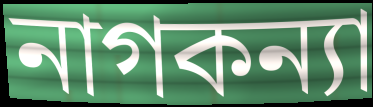
নাগকন্যা